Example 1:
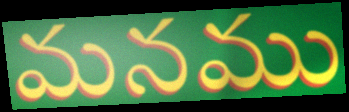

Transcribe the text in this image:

మనము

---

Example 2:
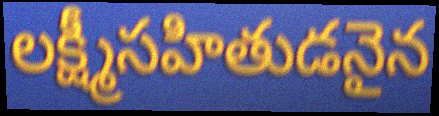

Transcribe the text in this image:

లక్ష్మీసహితుడనైన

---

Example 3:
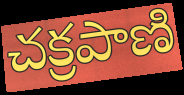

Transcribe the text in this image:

చక్రపాణి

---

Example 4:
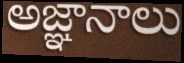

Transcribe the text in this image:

అజ్ఞానాలు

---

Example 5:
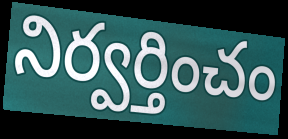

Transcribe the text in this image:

నిర్వర్తించం